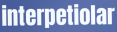
interpetiolar